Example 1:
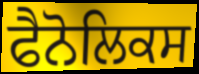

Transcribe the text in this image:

ਫੈਨੋਲਿਕਸ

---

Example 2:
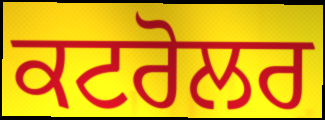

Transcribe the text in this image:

ਕਟਰੋਲਰ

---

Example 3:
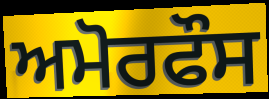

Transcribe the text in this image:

ਅਮੋਰਫੌਸ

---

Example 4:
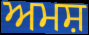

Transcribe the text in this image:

ਅਮਸ਼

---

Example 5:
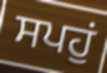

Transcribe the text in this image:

ਸਪਹੁਂ